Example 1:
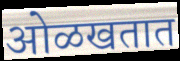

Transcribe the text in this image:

ओळखतात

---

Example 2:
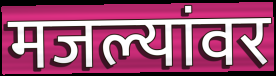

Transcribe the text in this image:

मजल्यांवर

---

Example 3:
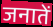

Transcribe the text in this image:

जनातें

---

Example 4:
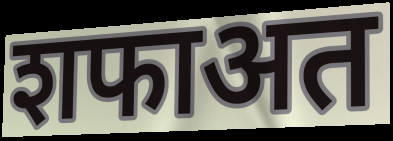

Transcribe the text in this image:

शफाअत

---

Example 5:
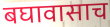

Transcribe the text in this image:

बघावासाच